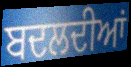
ਬਦਲਦੀਆਂ